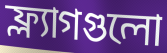
ফ্ল্যাগগুলো